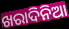
ଖରାଦିନିଆ